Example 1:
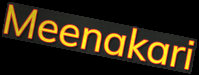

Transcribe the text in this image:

Meenakari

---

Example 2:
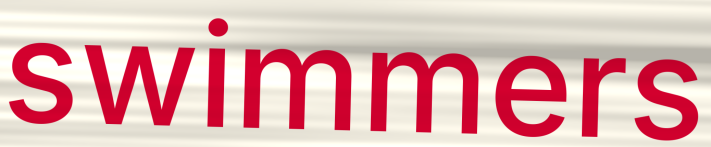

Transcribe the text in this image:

swimmers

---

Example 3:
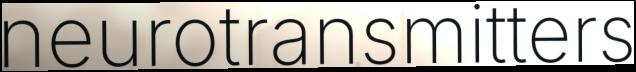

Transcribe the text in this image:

neurotransmitters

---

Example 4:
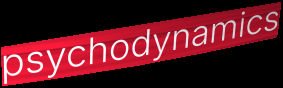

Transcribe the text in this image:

psychodynamics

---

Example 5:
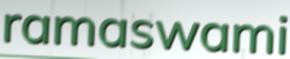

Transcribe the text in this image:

ramaswami